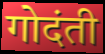
गोदंती